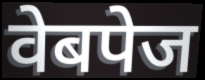
वेबपेज